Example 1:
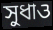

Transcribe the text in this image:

সুধাও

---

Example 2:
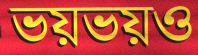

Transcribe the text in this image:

ভয়ভয়ও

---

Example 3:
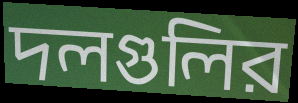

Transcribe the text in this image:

দলগুলির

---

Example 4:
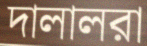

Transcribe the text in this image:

দালালরা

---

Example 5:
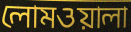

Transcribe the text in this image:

লোমওয়ালা